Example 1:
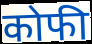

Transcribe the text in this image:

कोफी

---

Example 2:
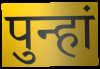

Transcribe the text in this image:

पुन्हां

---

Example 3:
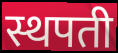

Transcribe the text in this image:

स्थपती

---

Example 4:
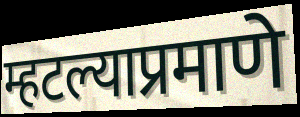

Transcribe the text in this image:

म्हटल्याप्रमाणे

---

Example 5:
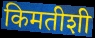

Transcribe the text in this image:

किमतीशी